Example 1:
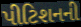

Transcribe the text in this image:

પીટિશનની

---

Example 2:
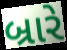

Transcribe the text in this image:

બ્રારે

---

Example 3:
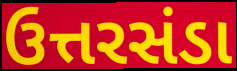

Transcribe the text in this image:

ઉત્તરસંડા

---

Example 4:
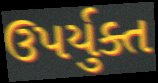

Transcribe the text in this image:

ઉપર્યુક્ત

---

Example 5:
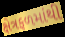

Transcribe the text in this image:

ક્ષેત્રફળમાંથી